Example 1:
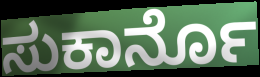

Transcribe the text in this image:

ಸುಕಾರ್ನೊ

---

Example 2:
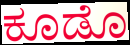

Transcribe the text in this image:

ಕೂಡೊ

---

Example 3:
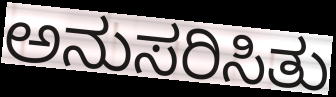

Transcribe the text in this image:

ಅನುಸರಿಸಿತು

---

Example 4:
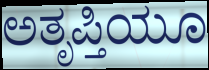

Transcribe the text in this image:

ಅತೃಪ್ತಿಯೂ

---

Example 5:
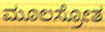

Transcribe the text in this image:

ಮೂಲಸ್ರೋತ